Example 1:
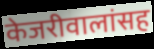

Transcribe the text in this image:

केजरीवालांसह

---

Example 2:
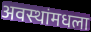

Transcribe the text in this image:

अवस्थांमधला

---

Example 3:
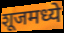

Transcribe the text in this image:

शूजमध्ये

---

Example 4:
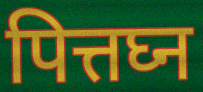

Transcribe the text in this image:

पित्तघ्न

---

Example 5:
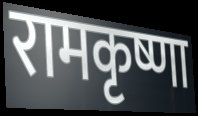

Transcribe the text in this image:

रामकृष्णा